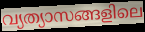
വ്യത്യാസങ്ങളിലെ